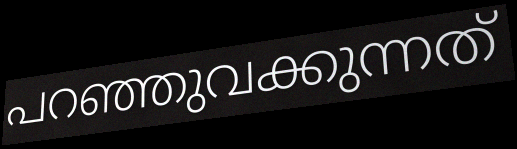
പറഞ്ഞുവക്കുന്നത്